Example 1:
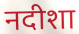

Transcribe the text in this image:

नदीशा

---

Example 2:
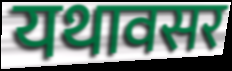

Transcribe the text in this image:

यथावसर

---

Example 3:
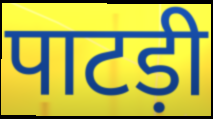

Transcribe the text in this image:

पाटड़ी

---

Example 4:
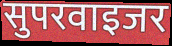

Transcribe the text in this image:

सुपरवाइजर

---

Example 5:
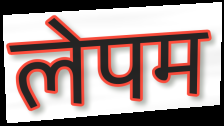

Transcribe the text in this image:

लेपम